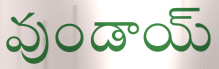
వుండాయ్